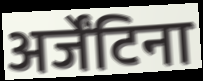
अर्जेंटिना